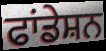
ਫਾਂਡੇਸ਼ਨ